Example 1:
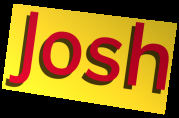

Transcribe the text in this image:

Josh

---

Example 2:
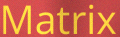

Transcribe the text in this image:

Matrix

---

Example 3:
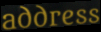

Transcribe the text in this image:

address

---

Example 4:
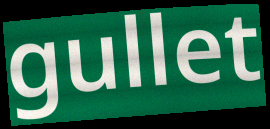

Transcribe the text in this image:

gullet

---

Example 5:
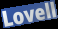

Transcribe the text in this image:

Lovell